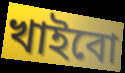
খাইবো